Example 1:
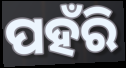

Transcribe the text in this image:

ପହଁରି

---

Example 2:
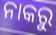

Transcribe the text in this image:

ନାକରୁ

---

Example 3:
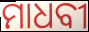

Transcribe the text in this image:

ମାଧବୀ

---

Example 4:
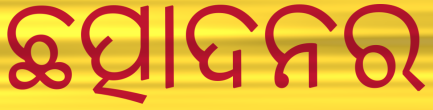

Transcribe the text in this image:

ଛତ୍ପାଦନର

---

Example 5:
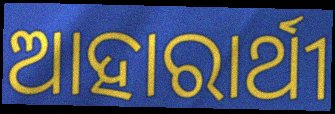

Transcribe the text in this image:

ଆହାରାର୍ଥୀ